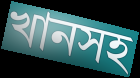
খানসহ